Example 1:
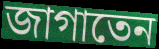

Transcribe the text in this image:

জাগাতেন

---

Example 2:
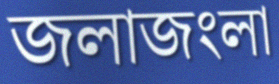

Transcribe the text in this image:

জলাজংলা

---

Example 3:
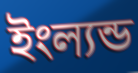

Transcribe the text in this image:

ইংল্যন্ড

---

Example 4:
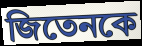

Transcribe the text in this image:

জিতেনকে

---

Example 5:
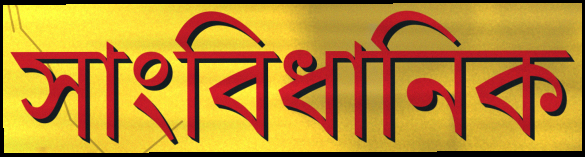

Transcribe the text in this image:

সাংবিধানিক